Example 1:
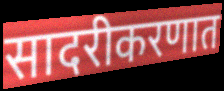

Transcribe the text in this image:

सादरीकरणात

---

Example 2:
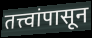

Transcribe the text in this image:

तत्त्वांपासून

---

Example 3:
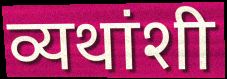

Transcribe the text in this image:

व्यथांशी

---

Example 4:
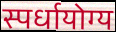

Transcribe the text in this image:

स्पर्धायोग्य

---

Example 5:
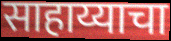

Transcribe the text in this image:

साहाय्याचा